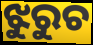
ଝୁରୁଚ